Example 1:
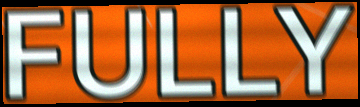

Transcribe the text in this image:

FULLY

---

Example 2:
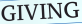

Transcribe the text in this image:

GIVING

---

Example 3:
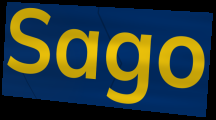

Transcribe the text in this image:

Sago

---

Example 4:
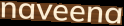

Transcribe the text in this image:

naveena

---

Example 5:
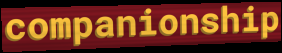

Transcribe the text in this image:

companionship